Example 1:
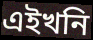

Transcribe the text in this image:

এইখনি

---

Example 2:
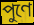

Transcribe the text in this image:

পুণে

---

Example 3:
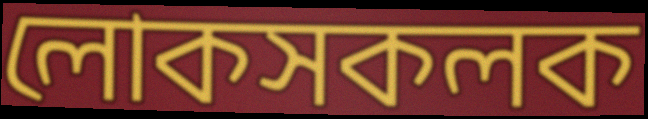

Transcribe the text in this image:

লোকসকলক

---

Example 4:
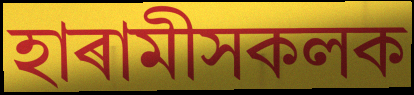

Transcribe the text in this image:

হাৰামীসকলক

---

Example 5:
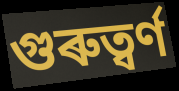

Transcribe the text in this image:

গুৰুত্ৱৰ্ণ